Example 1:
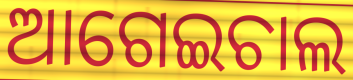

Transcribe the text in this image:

ଆଗେଇଚାଲ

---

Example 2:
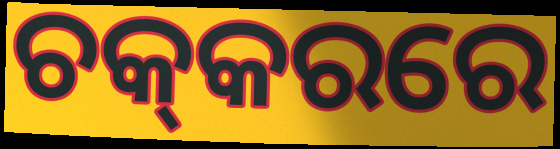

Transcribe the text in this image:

ଚକ୍‌କରରେ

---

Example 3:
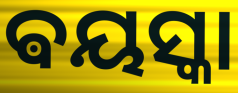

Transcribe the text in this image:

ଵୟସ୍କା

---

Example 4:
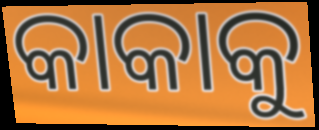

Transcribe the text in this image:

କାକାକୁ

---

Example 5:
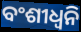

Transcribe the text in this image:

ବଂଶୀଧ୍ବନି